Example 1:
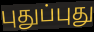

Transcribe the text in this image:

புதுப்புது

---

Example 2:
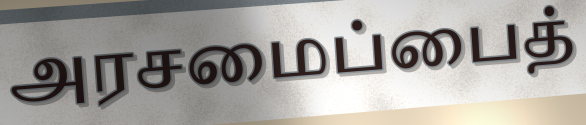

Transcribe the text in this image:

அரசமைப்பைத்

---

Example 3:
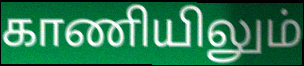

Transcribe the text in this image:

காணியிலும்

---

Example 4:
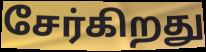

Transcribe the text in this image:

சேர்கிறது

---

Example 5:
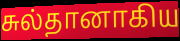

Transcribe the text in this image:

சுல்தானாகிய